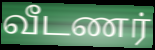
வீடணர்